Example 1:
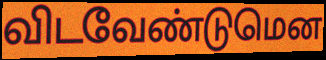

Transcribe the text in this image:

விடவேண்டுமென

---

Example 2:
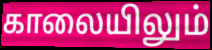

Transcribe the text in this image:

காலையிலும்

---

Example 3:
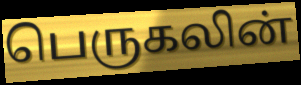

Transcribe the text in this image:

பெருகலின்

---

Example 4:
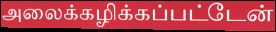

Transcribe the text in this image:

அலைக்கழிக்கப்பட்டேன்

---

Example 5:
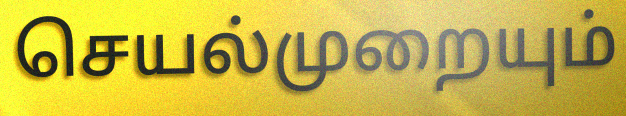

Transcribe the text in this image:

செயல்முறையும்